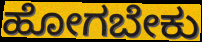
ಹೋಗಬೇಕು